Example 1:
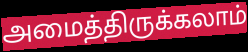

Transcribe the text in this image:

அமைத்திருக்கலாம்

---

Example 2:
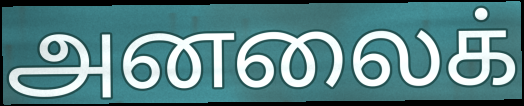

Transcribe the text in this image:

அனலைக்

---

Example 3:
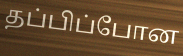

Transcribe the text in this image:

தப்பிப்போன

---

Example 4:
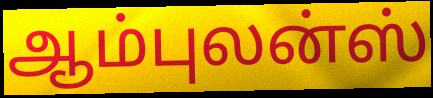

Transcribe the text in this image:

ஆம்புலன்ஸ்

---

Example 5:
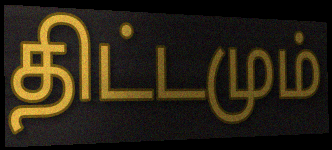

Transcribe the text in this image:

திட்டமும்